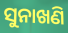
ସୁନାଖଣି